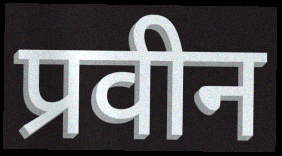
प्रवीन